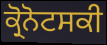
ਕ੍ਰੋਨੋਟਸਕੀ